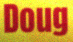
Doug